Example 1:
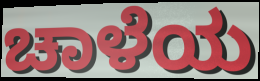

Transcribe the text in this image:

ಚಾಳೆಯ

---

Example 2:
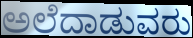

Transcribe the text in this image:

ಅಲೆದಾಡುವರು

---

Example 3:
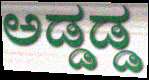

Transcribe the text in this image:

ಅಡ್ಡಡ್ಡ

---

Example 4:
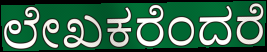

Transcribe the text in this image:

ಲೇಖಕರೆಂದರೆ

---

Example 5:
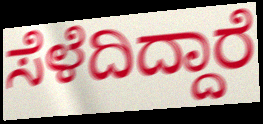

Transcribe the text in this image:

ಸೆಳೆದಿದ್ದಾರೆ